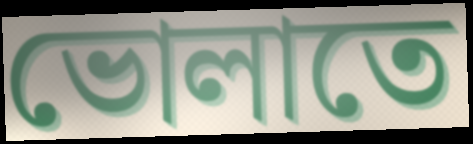
ভোলাতে